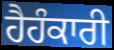
ਹੈਹੰਕਾਰੀ